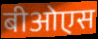
बीओएस